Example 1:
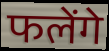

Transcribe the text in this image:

फलेंगे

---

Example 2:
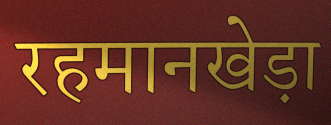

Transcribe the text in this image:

रहमानखेड़ा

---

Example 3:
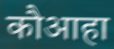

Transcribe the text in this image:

कौआहा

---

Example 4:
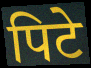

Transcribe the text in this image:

पिटे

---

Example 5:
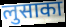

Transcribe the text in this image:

लुसाका